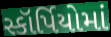
સ્કૉર્પિયોમાં